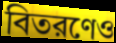
বিতরণেও